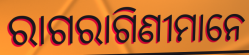
ରାଗରାଗିଣୀମାନେ